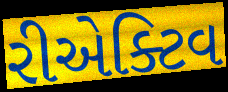
રીએક્ટિવ